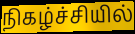
நிகழ்ச்சியில்